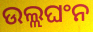
ଉଲ୍ଲଘଂନ